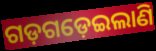
ଗଡ଼ଗଡ଼େଇଲାଣି